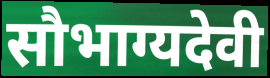
सौभाग्यदेवी